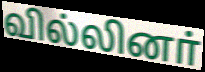
வில்லினர்